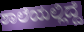
ಶಾಲೆಯಲ್ಲಿದ್ದೆ